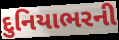
દુનિયાભરની